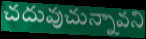
చదువుచున్నావని